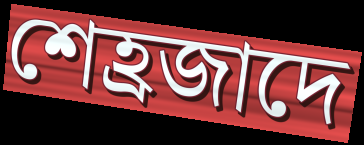
শেহ্রজাদে